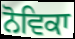
ਨੋਵਿਕਾ